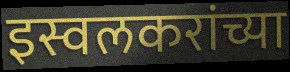
इस्वलकरांच्या